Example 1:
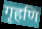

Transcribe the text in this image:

गृहणि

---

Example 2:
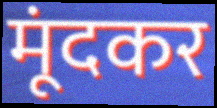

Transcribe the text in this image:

मूंदकर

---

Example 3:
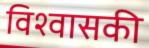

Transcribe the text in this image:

विश्वासकी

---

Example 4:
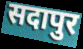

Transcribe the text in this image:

सदापुर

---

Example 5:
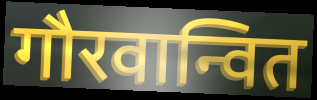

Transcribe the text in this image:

गौरवान्वित